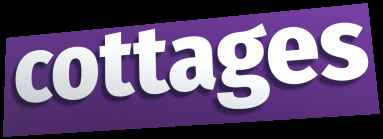
cottages